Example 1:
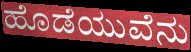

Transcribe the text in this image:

ಹೊಡೆಯುವೆನು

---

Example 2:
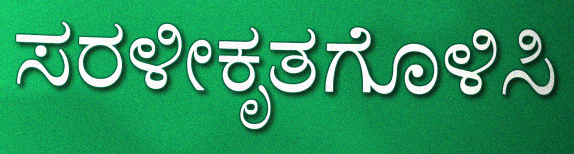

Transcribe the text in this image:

ಸರಳೀಕೃತಗೊಳಿಸಿ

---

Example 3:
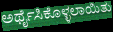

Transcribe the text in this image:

ಅರ್ಥೈಸಿಕೊಳ್ಳಲಾಯಿತು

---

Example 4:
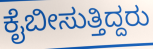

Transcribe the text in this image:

ಕೈಬೀಸುತ್ತಿದ್ದರು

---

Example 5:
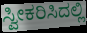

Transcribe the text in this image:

ಸ್ವೀಕರಿಸಿದಲ್ಲಿ